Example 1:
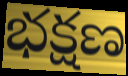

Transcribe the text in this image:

భక్షణ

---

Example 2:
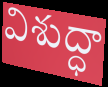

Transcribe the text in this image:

విశుద్ధా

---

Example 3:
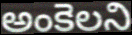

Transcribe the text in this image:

అంకెలని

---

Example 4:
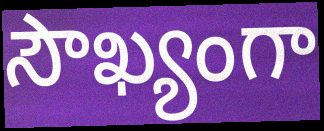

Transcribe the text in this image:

సౌఖ్యంగా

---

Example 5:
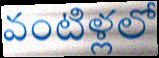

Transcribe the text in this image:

వంటిళ్లలో